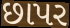
છાપર